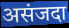
असंजदा